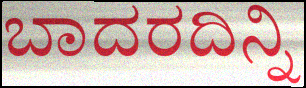
ಬಾದರದಿನ್ನಿ